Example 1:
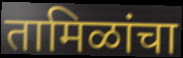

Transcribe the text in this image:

तामिळांचा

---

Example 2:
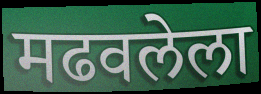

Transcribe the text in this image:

मढवलेला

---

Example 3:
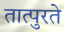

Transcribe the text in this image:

तात्पुरते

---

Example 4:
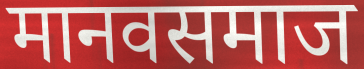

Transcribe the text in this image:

मानवसमाज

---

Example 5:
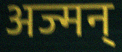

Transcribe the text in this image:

अज्मन्